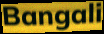
Bangali